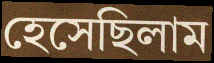
হেসেছিলাম